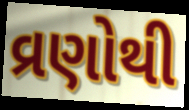
વ્રણોથી